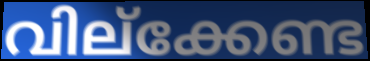
വില്ക്കേണ്ട